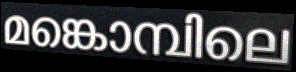
മങ്കൊമ്പിലെ